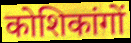
कोशिकांगों